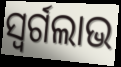
ସ୍ୱର୍ଗଲାଭ